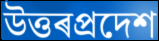
উত্তৰপ্ৰদেশ